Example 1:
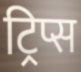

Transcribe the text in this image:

ट्रिप्स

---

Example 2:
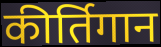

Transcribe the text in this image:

कीर्तिगान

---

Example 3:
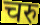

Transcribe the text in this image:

चरु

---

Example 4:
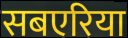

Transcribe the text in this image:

सबएरिया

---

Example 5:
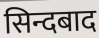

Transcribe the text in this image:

सिन्दबाद